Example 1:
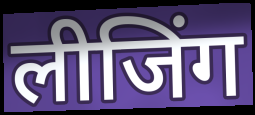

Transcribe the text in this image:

लीजिंग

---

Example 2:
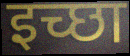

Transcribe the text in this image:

इच्छा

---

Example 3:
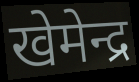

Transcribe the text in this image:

खेमेन्द्र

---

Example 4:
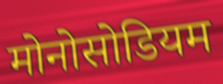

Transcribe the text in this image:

मोनोसोडियम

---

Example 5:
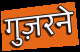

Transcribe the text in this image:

गुज़रने